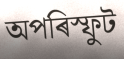
অপৰিস্ফুট